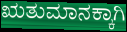
ಋತುಮಾನಕ್ಕಾಗಿ